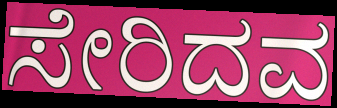
ಸೇರಿದವ